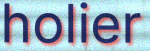
holier